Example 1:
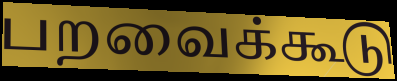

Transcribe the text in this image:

பறவைக்கூடு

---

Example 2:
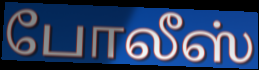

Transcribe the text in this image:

போலீஸ்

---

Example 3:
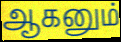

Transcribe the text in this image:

ஆகனும்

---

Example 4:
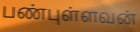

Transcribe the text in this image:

பண்புள்ளவன்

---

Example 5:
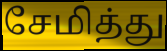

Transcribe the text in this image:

சேமித்து